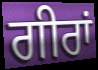
ਗੀਰਾਂ